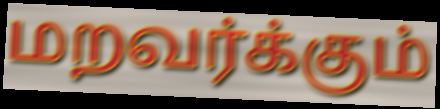
மறவர்க்கும்